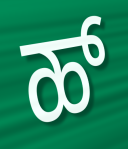
ಹ್